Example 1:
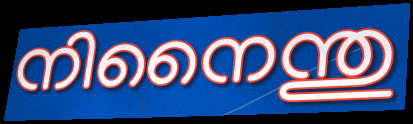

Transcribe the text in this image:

നിനൈന്തു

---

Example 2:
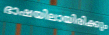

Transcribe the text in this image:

ഭാഷയിലായിരിക്കും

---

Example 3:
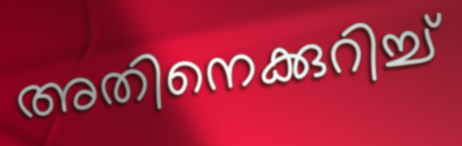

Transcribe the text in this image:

അതിനെക്കുറിച്ച്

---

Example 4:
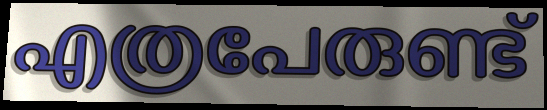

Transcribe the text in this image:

എത്രപേരുണ്ട്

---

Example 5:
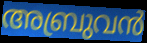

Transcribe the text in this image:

അബ്രുവൻ